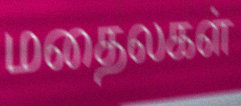
மதைலகள்